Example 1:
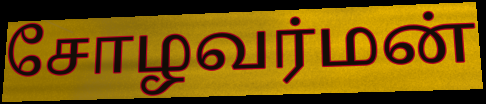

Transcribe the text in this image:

சோழவர்மன்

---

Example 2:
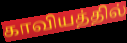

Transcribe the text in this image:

காவியத்தில்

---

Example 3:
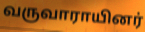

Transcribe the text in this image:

வருவாராயினர்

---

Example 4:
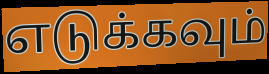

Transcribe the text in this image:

எடுக்கவும்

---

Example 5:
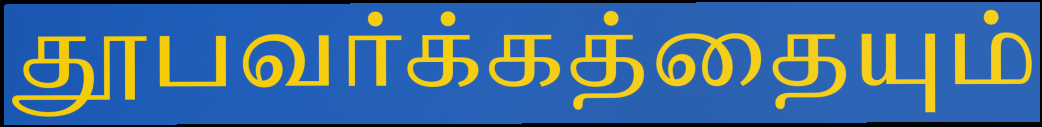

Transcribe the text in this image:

தூபவர்க்கத்தையும்